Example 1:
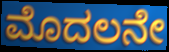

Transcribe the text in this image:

ಮೊದಲನೇ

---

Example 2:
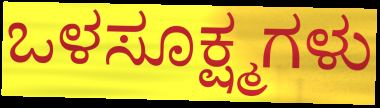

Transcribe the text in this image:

ಒಳಸೂಕ್ಷ್ಮಗಳು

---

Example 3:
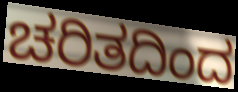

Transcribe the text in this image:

ಚರಿತದಿಂದ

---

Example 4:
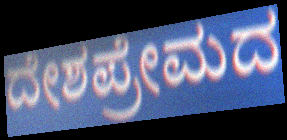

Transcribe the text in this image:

ದೇಶಪ್ರೇಮದ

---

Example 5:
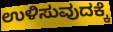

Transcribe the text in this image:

ಉಳಿಸುವುದಕ್ಕೆ